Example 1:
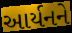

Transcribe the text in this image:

આર્યનને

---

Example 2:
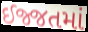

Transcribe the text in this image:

ઈજ્જતમાં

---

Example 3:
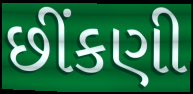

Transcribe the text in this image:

છીંકણી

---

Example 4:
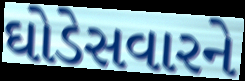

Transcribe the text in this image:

ઘોડેસવારને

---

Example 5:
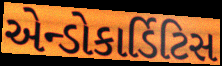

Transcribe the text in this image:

એન્ડોકાર્ડિટિસ